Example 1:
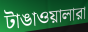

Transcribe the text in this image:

টাঙাওয়ালারা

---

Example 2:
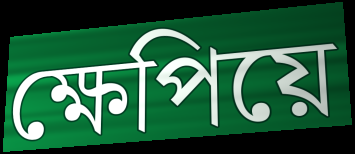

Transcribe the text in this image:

ক্ষেপিয়ে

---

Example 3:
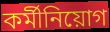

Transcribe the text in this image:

কর্মীনিয়োগ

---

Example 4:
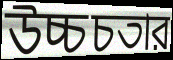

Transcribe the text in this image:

উচ্চচতার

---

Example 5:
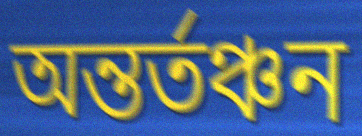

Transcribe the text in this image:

অন্তর্তঞ্চন